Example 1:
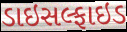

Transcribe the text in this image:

ડાઇસલ્ફાઇડ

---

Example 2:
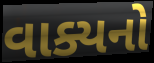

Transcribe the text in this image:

વાક્યનો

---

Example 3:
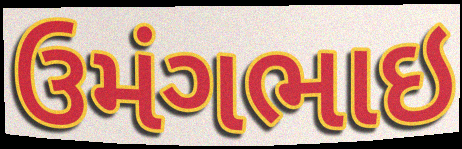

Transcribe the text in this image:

ઉમંગભાઇ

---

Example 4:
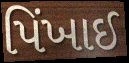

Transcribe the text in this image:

પિંખાઈ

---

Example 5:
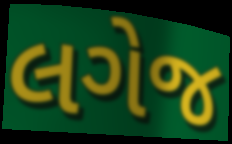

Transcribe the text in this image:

લગેજ